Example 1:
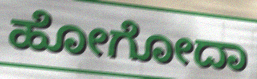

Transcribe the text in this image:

ಹೋಗೋದಾ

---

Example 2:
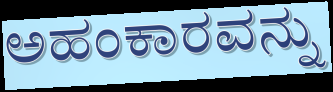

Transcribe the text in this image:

ಅಹಂಕಾರವನ್ನು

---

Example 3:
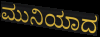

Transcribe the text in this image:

ಮುನಿಯಾದ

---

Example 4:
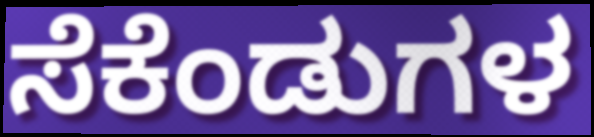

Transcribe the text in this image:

ಸೆಕೆಂಡುಗಳ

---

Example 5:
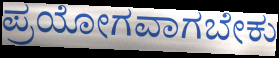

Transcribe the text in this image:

ಪ್ರಯೋಗವಾಗಬೇಕು